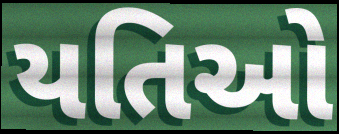
યતિઓ